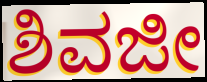
ಶಿವಜೀ